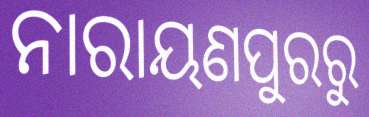
ନାରାୟଣପୁରରୁ